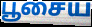
பூசைய